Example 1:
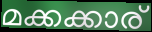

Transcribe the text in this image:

മക്കക്കാര്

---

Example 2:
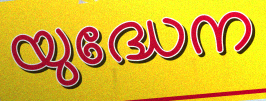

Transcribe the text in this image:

യുദ്ധേന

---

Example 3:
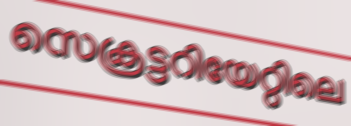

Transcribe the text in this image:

സെക്രട്ടറിയേറ്റിലെ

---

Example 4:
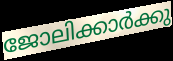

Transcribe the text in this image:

ജോലിക്കാർക്കു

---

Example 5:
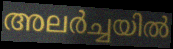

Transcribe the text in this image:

അലർച്ചയിൽ